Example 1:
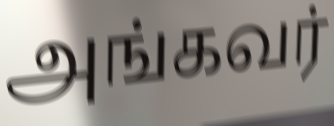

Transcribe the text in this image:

அங்கவர்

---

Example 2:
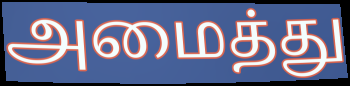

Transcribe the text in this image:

அமைத்து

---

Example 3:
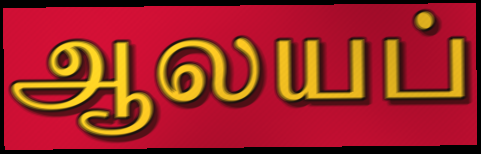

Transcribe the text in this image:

ஆலயப்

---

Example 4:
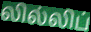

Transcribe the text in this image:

லில்லிப்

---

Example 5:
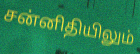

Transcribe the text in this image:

சன்னிதியிலும்